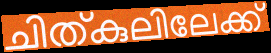
ചിത്കുലിലേക്ക്